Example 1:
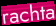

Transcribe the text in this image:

rachta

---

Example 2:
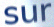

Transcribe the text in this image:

sur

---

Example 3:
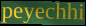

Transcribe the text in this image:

peyechhi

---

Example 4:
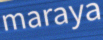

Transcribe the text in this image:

maraya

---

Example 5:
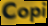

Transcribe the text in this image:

Copi